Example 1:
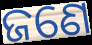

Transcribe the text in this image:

ଜଣେ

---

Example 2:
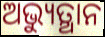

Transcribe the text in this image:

ଅଭ୍ୟୁତ୍ଥାନ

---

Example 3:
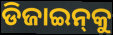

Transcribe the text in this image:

ଡିଜାଇନ୍‌କୁ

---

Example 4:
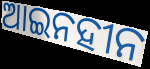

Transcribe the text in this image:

ଆଇନହୀନ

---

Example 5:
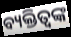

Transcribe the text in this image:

ବ୍ୟକ୍ତିତ୍ବଙ୍କ